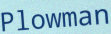
Plowman